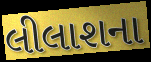
લીલાશના